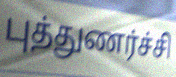
புத்துணர்ச்சி